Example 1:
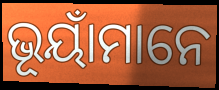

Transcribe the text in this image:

ଭୂୟାଁମାନେ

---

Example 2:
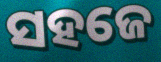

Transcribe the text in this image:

ସହଜେ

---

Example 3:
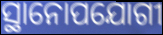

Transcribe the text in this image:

ସ୍ଥାନୋପଯୋଗୀ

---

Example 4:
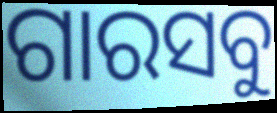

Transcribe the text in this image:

ଗାରସବୁ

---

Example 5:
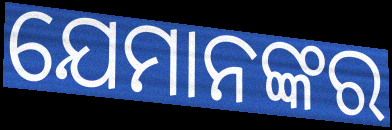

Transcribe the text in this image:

ଯେମାନଙ୍କର